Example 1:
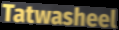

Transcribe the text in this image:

Tatwasheel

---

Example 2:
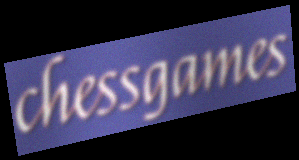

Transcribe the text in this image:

chessgames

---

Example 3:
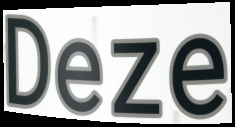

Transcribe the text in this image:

Deze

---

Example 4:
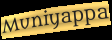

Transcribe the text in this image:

Muniyappa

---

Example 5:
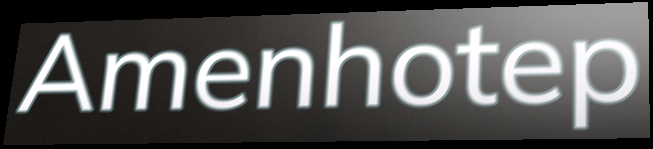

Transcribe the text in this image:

Amenhotep